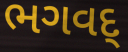
ભગવદ્